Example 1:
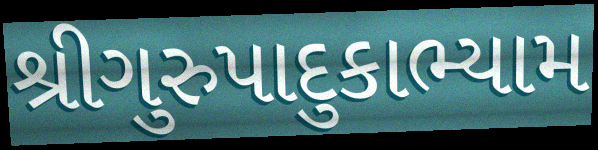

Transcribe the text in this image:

શ્રીગુરુપાદુકાભ્યામ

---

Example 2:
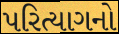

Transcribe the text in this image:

પરિત્યાગનો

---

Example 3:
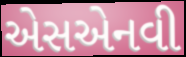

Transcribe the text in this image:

એસએનવી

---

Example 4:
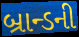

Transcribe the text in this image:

બ્રાન્ડની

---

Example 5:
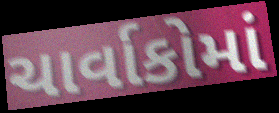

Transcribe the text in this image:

ચાર્વાકોમાં